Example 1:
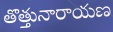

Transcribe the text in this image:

తొత్తునారాయణ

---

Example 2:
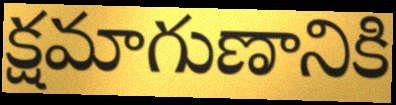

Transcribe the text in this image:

క్షమాగుణానికి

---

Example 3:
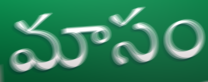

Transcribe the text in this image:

మాసం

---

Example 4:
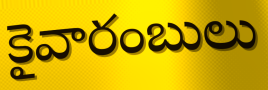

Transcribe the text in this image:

కైవారంబులు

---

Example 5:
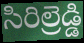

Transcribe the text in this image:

సిరిల్రెడ్డి